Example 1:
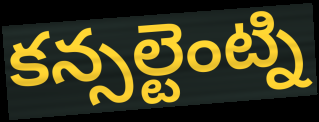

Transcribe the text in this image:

కన్సల్టెంట్ని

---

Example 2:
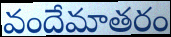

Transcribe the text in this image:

వందేమాతరం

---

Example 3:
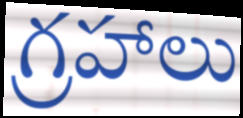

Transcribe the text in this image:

గ్రహాలు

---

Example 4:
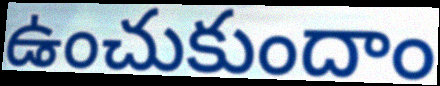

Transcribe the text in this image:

ఉంచుకుందాం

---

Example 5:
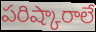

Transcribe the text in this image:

పరిష్కారాలే